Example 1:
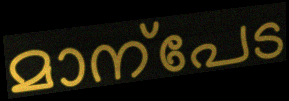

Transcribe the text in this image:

മാന്പേട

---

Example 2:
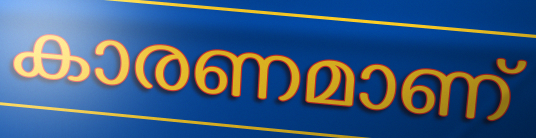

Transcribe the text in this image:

കാരണമാണ്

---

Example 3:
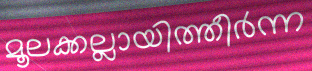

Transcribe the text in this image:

മൂലക്കല്ലായിത്തീർന്ന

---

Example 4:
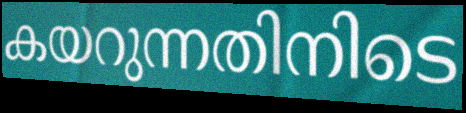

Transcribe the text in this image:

കയറുന്നതിനിടെ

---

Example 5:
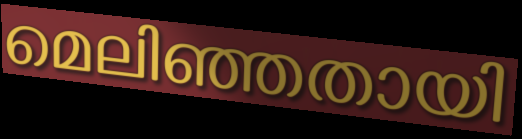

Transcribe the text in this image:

മെലിഞ്ഞതായി